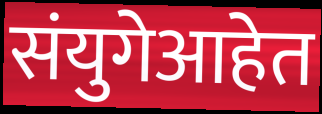
संयुगेआहेत